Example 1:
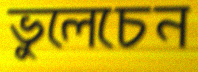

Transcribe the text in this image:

ভুলেচেন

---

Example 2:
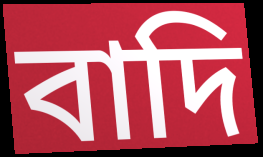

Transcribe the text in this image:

বাদি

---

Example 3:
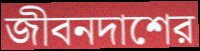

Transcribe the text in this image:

জীবনদাশের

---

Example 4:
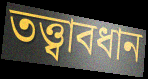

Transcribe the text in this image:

তত্ত্বাবধান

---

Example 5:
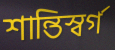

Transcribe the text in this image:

শান্তিস্বর্গ